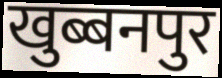
खुब्बनपुर